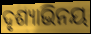
ଦୃଶ୍ୟାଭିନୟ